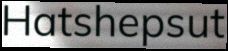
Hatshepsut